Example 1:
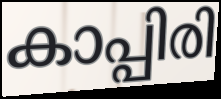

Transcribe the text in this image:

കാപ്പിരി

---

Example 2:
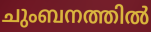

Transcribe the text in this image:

ചുംബനത്തിൽ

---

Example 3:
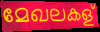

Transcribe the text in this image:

മേഖലകള്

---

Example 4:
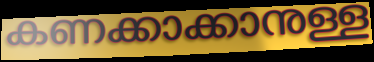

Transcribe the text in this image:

കണക്കാക്കാനുള്ള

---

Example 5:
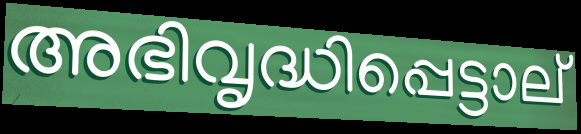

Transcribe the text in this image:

അഭിവൃദ്ധിപ്പെട്ടാല്